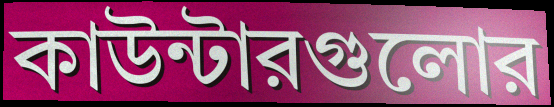
কাউন্টারগুলোর